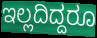
ಇಲ್ಲದಿದ್ದರೂ